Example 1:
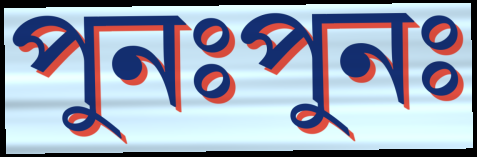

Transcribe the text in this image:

পুনঃপুনঃ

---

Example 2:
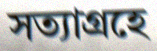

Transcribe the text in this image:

সত্যাগ্রহে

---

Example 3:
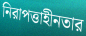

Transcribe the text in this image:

নিরাপত্তাহীনতার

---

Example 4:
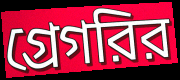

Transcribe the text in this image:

গ্রেগরির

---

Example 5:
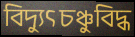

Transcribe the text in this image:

বিদ্যুৎচঞ্চুবিদ্ধ